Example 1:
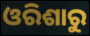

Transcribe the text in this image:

ଓରିଶାରୁ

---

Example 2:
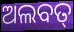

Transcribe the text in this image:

ଅଲବତ୍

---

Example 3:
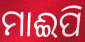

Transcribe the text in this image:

ମାଈପି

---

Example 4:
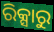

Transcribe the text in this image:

ରିକ୍ସାରୁ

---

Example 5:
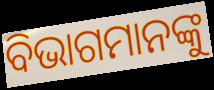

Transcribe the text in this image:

ବିଭାଗମାନଙ୍କୁ